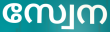
സ്വേന